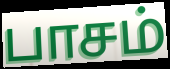
பாசம்